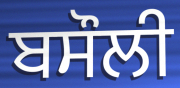
ਬਸੌਲੀ